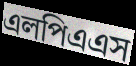
এলপিএএস